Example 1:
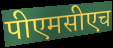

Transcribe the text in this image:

पीएमसीएच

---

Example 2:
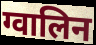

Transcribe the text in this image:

ग्वालिन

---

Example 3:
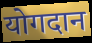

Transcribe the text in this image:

योगदान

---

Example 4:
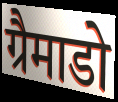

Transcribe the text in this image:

ग्रैमाडो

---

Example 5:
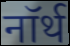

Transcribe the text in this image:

नॉर्थ